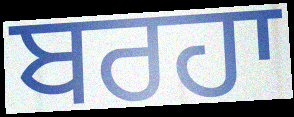
ਬਰਹਾ